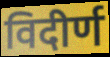
विदीर्ण